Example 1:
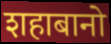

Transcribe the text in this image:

शहाबानो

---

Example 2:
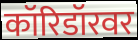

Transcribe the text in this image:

कॉरिडॉरवर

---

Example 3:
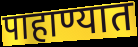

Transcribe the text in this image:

पाहाण्यात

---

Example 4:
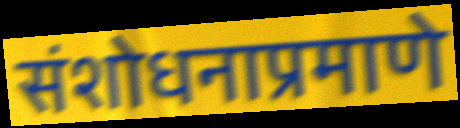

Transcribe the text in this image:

संशोधनाप्रमाणे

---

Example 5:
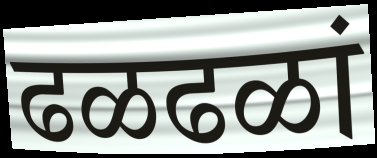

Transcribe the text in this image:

ढळढळां